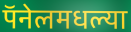
पॅनेलमधल्या